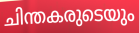
ചിന്തകരുടെയും